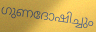
ഗുണദോഷിച്ചും